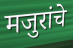
मजुरांचे